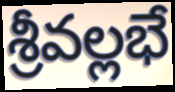
శ్రీవల్లభే